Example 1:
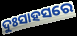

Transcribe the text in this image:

ଦୁଃସାହସରେ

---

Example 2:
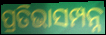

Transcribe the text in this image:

ପ୍ରତିଭାସମ୍ପନ୍ନ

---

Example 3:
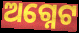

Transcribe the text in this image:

ଅଗ୍ନେଟ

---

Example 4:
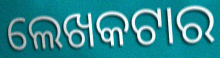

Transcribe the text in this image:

ଲେଖକଟାର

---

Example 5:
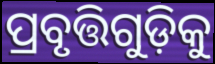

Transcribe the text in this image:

ପ୍ରବୃତ୍ତିଗୁଡ଼ିକୁ